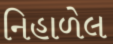
નિહાળેલ